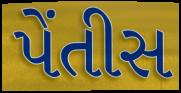
પેંતીસ